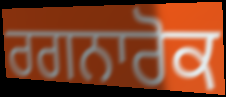
ਰਗਨਾਰੋਕ